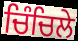
ਚਿੰਚਿਲੇ